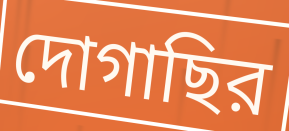
দোগাছির